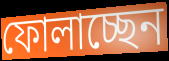
ফোলাচ্ছেন